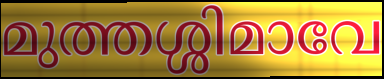
മുത്തശ്ശിമാവേ